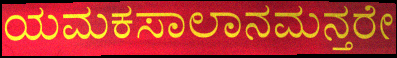
ಯಮಕಸಾಲಾನಮನ್ತರೇ